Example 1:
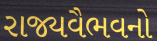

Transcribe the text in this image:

રાજ્યવૈભવનો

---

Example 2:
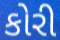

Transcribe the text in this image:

કોરી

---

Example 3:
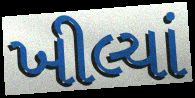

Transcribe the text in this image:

ખીલ્યાં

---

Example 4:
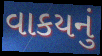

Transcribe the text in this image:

વાકયનું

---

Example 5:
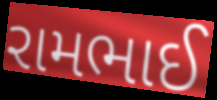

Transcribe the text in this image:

રામભાઈ